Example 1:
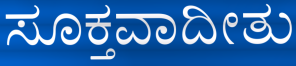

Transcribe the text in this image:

ಸೂಕ್ತವಾದೀತು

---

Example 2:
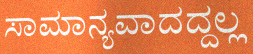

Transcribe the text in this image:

ಸಾಮಾನ್ಯವಾದದ್ದಲ್ಲ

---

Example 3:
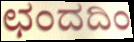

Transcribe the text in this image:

ಛಂದದಿಂ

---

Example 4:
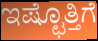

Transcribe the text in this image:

ಇಷ್ಟೊತ್ತಿಗೆ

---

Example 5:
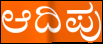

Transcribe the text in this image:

ಆದಿಪು